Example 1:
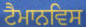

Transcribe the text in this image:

ਟੈਮਾਨਵਿਸ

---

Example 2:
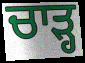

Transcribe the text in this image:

ਚਾਡ਼੍ਹ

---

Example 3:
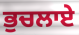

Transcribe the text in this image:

ਭੁਚਲਾਏ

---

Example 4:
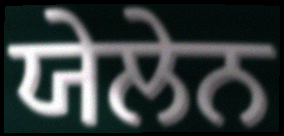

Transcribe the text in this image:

ਯੇਲੇਨ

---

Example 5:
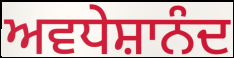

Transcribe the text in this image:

ਅਵਧੇਸ਼ਾਨੰਦ